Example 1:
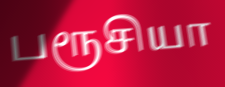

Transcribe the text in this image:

பரூசியா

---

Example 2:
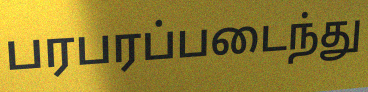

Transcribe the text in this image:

பரபரப்படைந்து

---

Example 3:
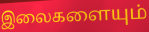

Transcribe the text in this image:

இலைகளையும்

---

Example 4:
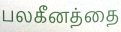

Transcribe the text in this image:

பலகீனத்தை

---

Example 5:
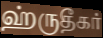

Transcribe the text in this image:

ஹ்ருதீகர்